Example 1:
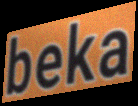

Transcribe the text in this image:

beka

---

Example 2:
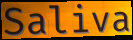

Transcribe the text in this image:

Saliva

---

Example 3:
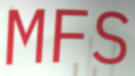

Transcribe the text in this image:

MFS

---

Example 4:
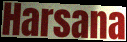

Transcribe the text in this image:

Harsana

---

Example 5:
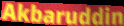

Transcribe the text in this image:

Akbaruddin